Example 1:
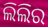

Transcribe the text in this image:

ଲିଲିର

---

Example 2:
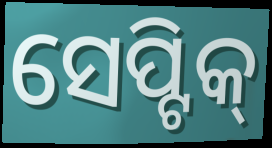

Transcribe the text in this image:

ସେପ୍ଟିକ୍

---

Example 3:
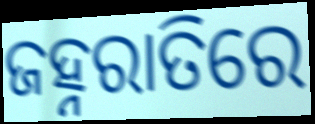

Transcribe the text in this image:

ଜହ୍ନରାତିରେ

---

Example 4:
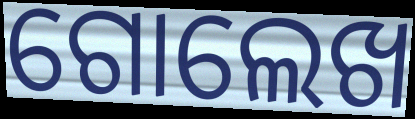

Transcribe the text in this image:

ଗୋଲେଖ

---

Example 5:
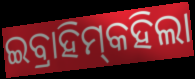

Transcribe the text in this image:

ଇବ୍ରାହିମ୍‌କହିଲା